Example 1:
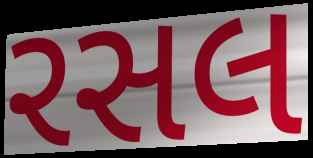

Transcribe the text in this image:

રસલ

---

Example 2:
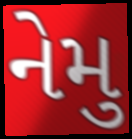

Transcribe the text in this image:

નેમુ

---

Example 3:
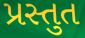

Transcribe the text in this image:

પ્રસ્તુત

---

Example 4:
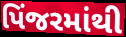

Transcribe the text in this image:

પિંજરમાંથી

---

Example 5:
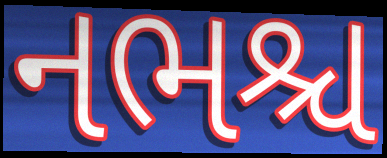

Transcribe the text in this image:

નભશ્ચ